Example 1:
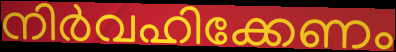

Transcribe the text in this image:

നിർവഹിക്കേണം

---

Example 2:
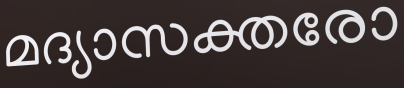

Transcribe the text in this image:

മദ്യാസക്തരോ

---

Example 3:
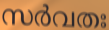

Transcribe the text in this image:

സർവതഃ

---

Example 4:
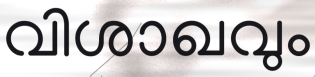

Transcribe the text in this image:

വിശാഖവും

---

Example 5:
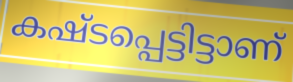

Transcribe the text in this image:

കഷ്ടപ്പെട്ടിട്ടാണ്